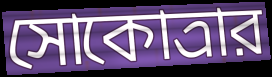
সোকোত্রার